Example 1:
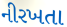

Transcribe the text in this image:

નીરખતા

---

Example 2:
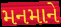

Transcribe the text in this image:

મનમાને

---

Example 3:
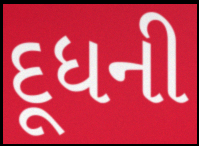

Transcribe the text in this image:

દૂધની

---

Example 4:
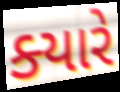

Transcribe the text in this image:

ક્‍યારે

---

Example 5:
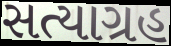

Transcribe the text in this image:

સત્‍યાગ્રહ